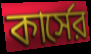
কার্সের